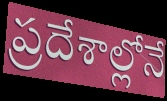
ప్రదేశాల్లోనే